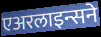
एअरलाइन्सने